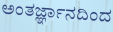
ಅಂತರ್ಜ್ಞಾನದಿಂದ